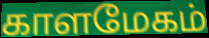
காளமேகம்